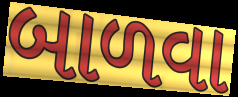
બાળવા